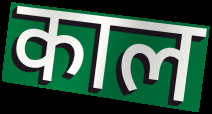
काल